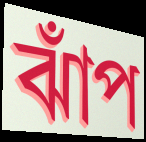
ঝাঁপ